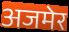
अजमेर